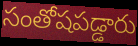
సంతోషపడ్డారు